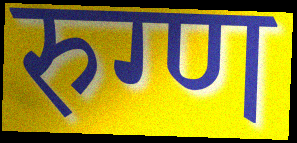
रुग्ण